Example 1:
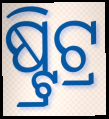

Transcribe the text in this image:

ଷ୍ଟ୍ରିଟ୍ର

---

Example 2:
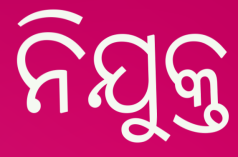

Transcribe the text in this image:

ନିଯୁକ୍ତ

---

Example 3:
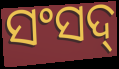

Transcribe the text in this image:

ସଂସଦ୍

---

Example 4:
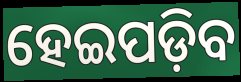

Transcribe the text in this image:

ହେଇପଡ଼ିବ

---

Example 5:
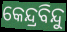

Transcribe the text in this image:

କେନ୍ଦ୍ରବିନ୍ଦୁ